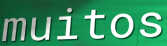
muitos